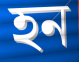
হন